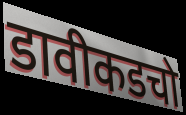
डावीकडचो